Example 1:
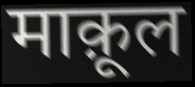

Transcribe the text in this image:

माक़ूल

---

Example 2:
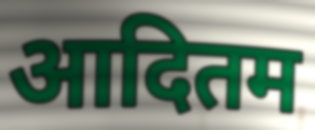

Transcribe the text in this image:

आदितम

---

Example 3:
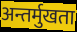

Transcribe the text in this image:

अन्तर्मुखता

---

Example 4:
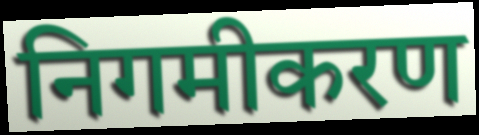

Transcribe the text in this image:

निगमीकरण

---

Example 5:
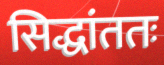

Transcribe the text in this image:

सिद्धांततः